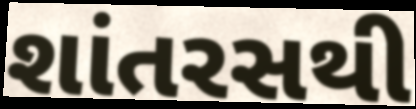
શાંતરસથી